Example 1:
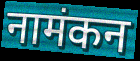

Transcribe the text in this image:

नामंकन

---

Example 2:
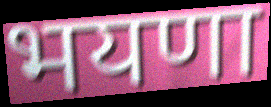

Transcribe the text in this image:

भयणा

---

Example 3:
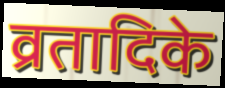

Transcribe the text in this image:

व्रतादिके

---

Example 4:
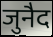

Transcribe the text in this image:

जुनैद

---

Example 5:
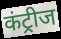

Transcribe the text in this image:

कंट्रीज